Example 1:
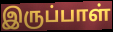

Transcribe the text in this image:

இருப்பாள்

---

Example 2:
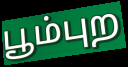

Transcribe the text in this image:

பூம்புற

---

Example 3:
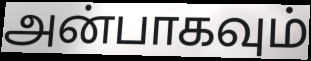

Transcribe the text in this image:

அன்பாகவும்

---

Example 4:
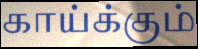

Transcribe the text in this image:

காய்க்கும்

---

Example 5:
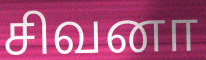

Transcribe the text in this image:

சிவனா